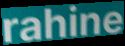
rahine